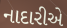
નાદારીએ